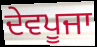
ਦੇਵਪੂਜਾ